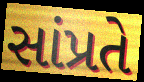
સાંપ્રતે